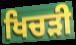
ਖਿਚੜੀ